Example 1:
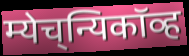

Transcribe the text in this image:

म्येच्‌न्यिकॉव्ह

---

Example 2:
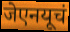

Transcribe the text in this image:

जेएनयूचं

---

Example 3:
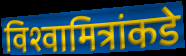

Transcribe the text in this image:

विश्वामित्रांकडे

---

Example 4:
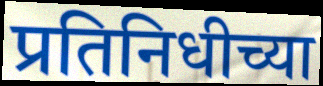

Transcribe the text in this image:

प्रतिनिधीच्या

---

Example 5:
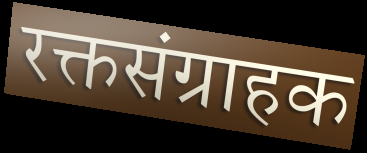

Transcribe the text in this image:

रक्तसंग्राहक